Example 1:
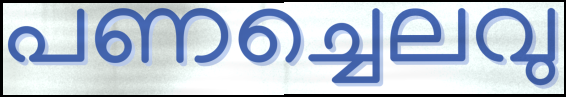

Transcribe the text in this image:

പണച്ചെലവു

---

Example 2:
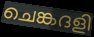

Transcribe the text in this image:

ചെങ്കദളി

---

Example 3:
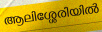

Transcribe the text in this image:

ആലിശ്ശേരിയിൽ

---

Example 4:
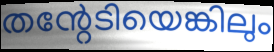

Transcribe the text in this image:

തന്റേടിയെങ്കിലും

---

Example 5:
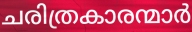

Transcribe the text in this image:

ചരിത്രകാരന്മാർ